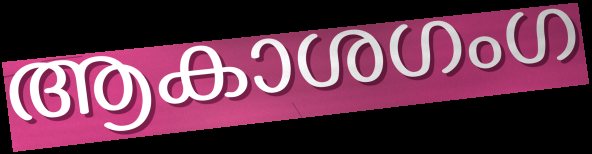
ആകാശഗംഗ